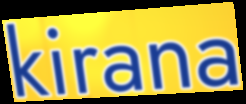
kirana